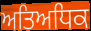
ਅਤਿਅਧਿਕ